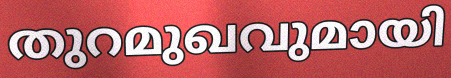
തുറമുഖവുമായി